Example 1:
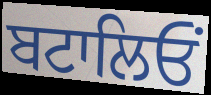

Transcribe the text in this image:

ਬਟਾਲਿਓਂ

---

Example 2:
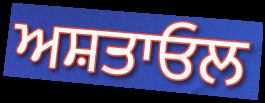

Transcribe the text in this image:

ਅਸ਼ਤਾਓਲ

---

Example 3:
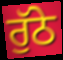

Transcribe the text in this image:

ਰੁੱਠੇ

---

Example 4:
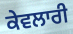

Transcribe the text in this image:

ਕੇਵਲਾਰੀ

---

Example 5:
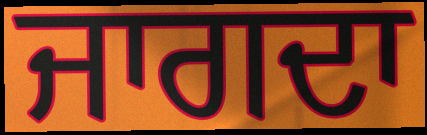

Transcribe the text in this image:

ਜਾਗਦਾ